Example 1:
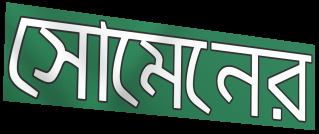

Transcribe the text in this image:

সোমেনের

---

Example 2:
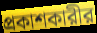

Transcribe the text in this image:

প্রকাশকারীর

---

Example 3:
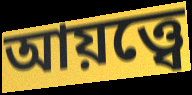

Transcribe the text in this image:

আয়ত্ত্বে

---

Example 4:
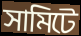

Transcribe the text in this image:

সামিটে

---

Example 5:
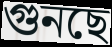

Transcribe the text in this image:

গুনছে